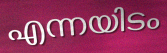
എന്നയിടം